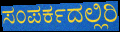
ಸಂಪರ್ಕದಲ್ಲಿರಿ